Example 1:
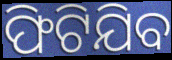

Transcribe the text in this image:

ଫିଟିଯିବ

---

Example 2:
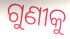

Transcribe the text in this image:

ଗୁଣୀକୁ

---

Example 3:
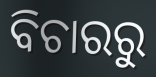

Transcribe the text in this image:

ବିଚାରରୁ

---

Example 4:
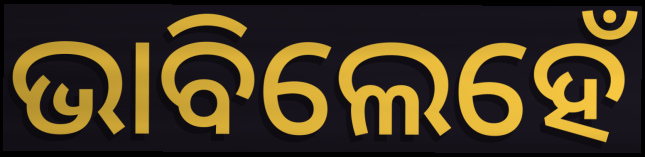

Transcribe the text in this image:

ଭାବିଲେହେଁ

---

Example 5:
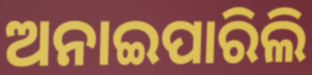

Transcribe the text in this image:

ଅନାଇପାରିଲି